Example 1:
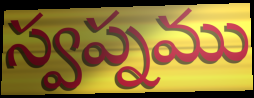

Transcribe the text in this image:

స్వప్నము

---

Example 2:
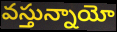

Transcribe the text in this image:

వస్తున్నాయో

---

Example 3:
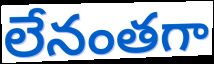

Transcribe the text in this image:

లేనంతగా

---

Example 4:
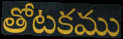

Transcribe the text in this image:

తోటకము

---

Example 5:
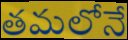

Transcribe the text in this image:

తమలోనే